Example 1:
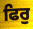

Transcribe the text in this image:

ਫਿਰੁ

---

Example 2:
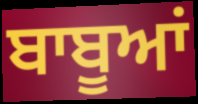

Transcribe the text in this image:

ਬਾਬੂਆਂ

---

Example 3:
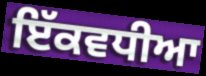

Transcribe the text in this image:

ਇੱਕਵਧੀਆ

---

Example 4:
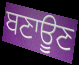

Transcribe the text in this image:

ਬਣਾਊਣ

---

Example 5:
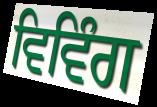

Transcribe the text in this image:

ਵਿਵਿੰਗ